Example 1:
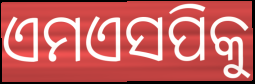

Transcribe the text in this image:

ଏମଏସପିକୁ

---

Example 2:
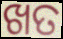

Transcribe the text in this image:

ଖତ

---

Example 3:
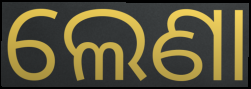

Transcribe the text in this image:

ଲେଣା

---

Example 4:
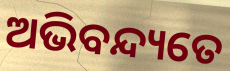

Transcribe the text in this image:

ଅଭିବନ୍ଦ୍ୟତେ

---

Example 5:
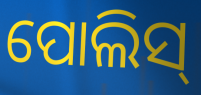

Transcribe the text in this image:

ପୋଲିସ୍